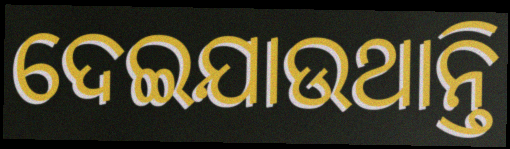
ଦେଇଯାଉଥାନ୍ତି